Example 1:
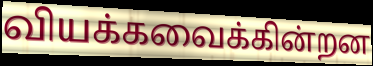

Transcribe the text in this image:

வியக்கவைக்கின்றன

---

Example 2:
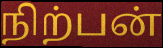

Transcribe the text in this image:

நிற்பன்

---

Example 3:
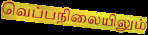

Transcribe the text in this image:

வெப்பநிலையிலும்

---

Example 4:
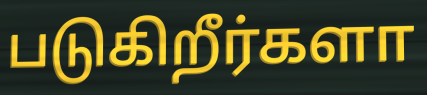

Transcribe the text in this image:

படுகிறீர்களா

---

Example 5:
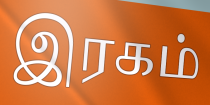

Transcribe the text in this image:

இரகம்